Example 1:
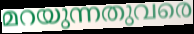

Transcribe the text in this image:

മറയുന്നതുവരെ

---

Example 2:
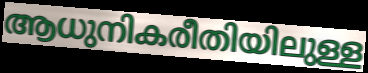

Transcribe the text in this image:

ആധുനികരീതിയിലുള്ള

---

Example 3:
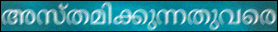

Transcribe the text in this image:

അസ്തമിക്കുന്നതുവരെ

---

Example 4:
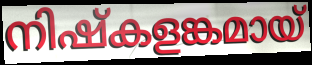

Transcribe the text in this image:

നിഷ്കളങ്കമായ്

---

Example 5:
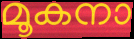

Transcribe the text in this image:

മൂകനാ